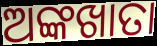
ଅଙ୍କଖାତା